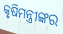
କୃଷିମନ୍ତ୍ରୀଙ୍କର